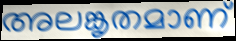
അലങ്കൃതമാണ്